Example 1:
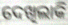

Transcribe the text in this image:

ଦେଖିଲାକି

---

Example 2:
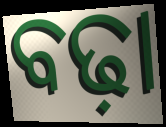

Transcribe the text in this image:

ବଢ଼ା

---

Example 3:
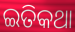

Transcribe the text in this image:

ଇତିକଥା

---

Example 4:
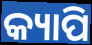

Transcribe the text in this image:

କ୍ୟାପି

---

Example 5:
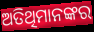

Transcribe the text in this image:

ଅତିଥିମାନଙ୍କର